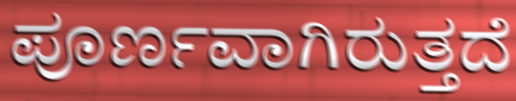
ಪೂರ್ಣವಾಗಿರುತ್ತದೆ